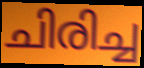
ചിരിച്ച